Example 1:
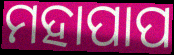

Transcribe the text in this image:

ମହାପାପ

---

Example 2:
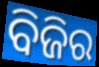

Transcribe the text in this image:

ବିଜିର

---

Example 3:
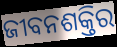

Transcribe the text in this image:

ଜୀବନଶକ୍ତିର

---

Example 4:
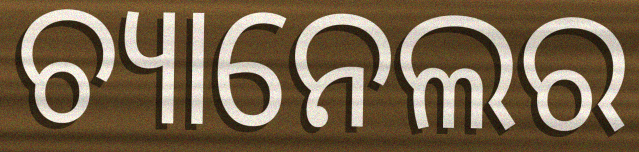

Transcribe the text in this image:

ଚ୍ୟାନେଲର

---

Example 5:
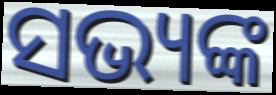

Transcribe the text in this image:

ସଭ୍ୟଙ୍କ